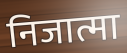
निजात्मा